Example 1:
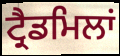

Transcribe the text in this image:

ਟ੍ਰੈਡਮਿਲਾਂ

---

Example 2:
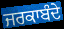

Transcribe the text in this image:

ਜਰਕਾਬੰਦੇ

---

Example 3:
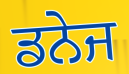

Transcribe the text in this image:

ਡਨੇਜ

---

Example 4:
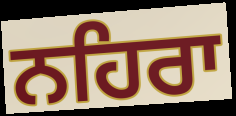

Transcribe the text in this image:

ਨਹਿਰਾ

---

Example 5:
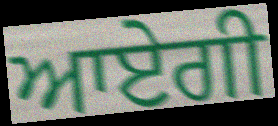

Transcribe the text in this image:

ਆਏਗੀ